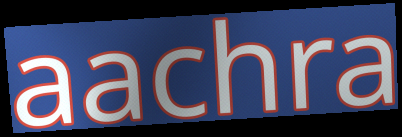
aachra